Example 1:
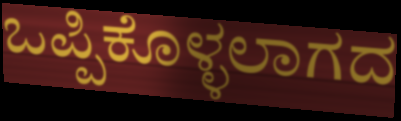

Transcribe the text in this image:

ಒಪ್ಪಿಕೊಳ್ಳಲಾಗದ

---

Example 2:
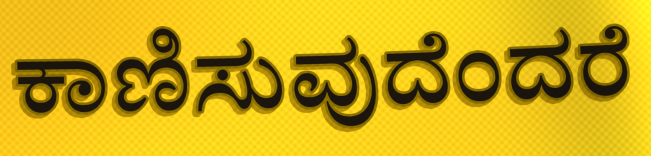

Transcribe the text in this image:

ಕಾಣಿಸುವುದೆಂದರೆ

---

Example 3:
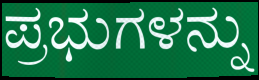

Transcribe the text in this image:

ಪ್ರಭುಗಳನ್ನು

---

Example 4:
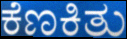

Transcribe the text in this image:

ಕೆಣಕಿತು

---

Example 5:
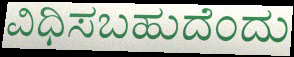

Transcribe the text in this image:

ವಿಧಿಸಬಹುದೆಂದು